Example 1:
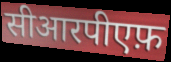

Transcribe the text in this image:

सीआरपीएफ़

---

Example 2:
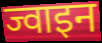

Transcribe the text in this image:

ज्‍वाइन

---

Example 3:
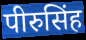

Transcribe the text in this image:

पीरुसिंह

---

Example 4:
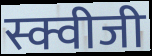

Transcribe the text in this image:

स्क्वीजी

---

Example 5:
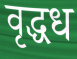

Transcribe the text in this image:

वृद्धध